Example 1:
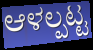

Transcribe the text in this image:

ಆಳಲ್ಪಟ್ಟ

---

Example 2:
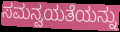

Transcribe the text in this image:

ಸಮನ್ವಯತೆಯನ್ನು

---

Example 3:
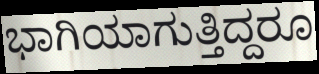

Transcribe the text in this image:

ಭಾಗಿಯಾಗುತ್ತಿದ್ದರೂ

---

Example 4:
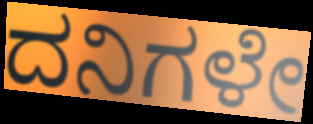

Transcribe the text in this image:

ದನಿಗಳೇ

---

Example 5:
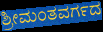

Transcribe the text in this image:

ಶ್ರೀಮಂತವರ್ಗದ